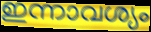
ഇന്നാവശ്യം